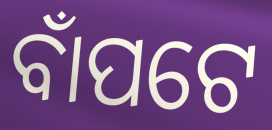
ବାଁପଟେ